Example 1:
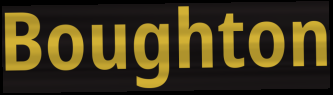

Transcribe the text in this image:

Boughton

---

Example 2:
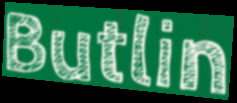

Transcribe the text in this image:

Butlin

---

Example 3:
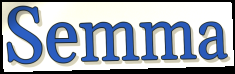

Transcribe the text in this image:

Semma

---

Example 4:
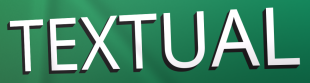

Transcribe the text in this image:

TEXTUAL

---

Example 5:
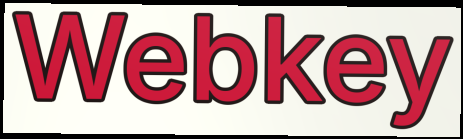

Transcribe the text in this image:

Webkey